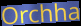
Orchha